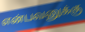
என்பவனுக்கு